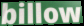
billow